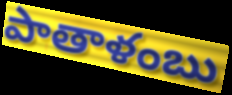
పాతాళంబు